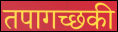
तपागच्छकी